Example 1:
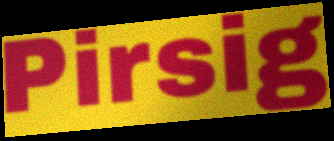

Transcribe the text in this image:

Pirsig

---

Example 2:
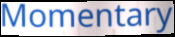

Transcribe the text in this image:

Momentary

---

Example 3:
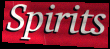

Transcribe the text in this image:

Spirits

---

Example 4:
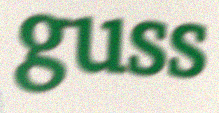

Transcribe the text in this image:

guss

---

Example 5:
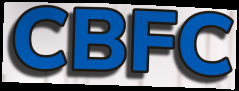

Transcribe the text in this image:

CBFC